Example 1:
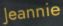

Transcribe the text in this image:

Jeannie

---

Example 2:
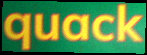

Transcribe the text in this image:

quack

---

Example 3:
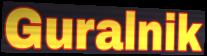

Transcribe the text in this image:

Guralnik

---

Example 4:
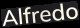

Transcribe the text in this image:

Alfredo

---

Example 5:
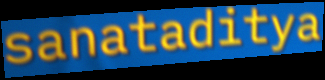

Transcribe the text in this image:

sanataditya